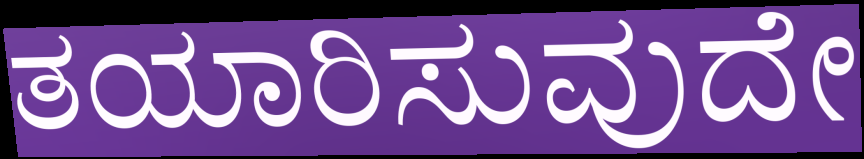
ತಯಾರಿಸುವುದೇ